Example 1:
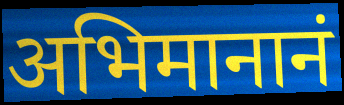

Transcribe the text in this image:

अभिमानानं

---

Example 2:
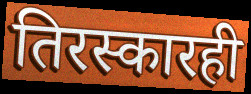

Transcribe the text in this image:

तिरस्कारही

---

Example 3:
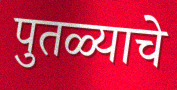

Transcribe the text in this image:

पुतळ्याचे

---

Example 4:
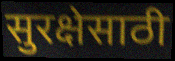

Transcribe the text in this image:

सुरक्षेसाठी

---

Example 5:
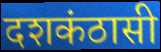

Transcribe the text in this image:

दशकंठासी